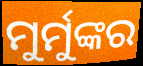
ମୁର୍ମୁଙ୍କର